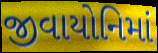
જીવાયોનિમાં